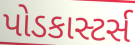
પોડકાસ્ટર્સ